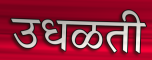
उधळती